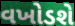
વખોડશે